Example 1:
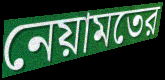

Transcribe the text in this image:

নেয়ামতের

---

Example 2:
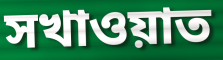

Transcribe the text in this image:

সখাওয়াত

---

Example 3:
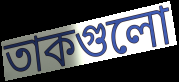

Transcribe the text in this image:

তাকগুলো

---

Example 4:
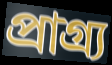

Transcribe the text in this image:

প্রাগ্র্য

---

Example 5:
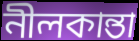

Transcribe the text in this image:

নীলকান্তা